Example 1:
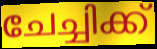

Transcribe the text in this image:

ചേച്ചിക്ക്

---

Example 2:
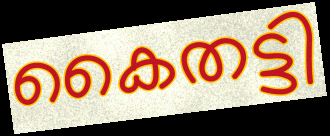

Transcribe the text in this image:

കൈതട്ടി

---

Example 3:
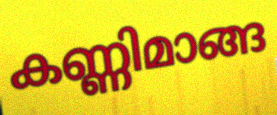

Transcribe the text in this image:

കണ്ണിമാങ്ങ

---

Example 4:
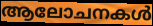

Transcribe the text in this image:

ആലോചനകൾ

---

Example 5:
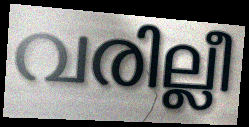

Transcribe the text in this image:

വരില്ലീ